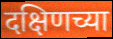
दक्षिणच्या